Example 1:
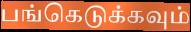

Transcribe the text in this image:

பங்கெடுக்கவும்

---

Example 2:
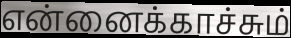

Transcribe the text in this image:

என்னைக்காச்சும்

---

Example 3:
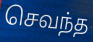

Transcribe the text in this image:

செவந்த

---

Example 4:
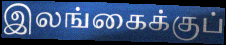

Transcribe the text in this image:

இலங்கைக்குப்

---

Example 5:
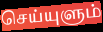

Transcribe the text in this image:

செய்யுளும்